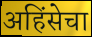
अहिंसेचा